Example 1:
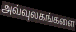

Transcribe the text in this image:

அவ்வுலகங்களை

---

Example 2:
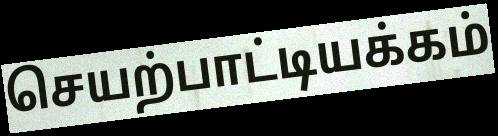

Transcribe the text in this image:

செயற்பாட்டியக்கம்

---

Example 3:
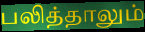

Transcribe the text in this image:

பலித்தாலும்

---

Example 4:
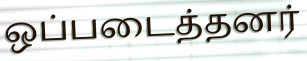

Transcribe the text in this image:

ஒப்படைத்தனர்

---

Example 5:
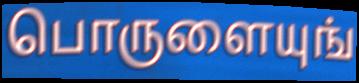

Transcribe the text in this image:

பொருளையுங்